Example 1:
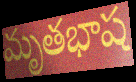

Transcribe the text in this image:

మృతభాష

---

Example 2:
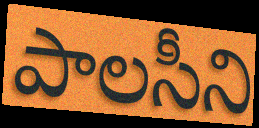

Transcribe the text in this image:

పాలసీని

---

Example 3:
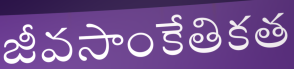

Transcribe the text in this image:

జీవసాంకేతికత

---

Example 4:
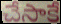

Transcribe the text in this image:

చేసాకే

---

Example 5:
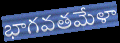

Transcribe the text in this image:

భాగవతమేళా